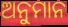
ଅନୁମାନ